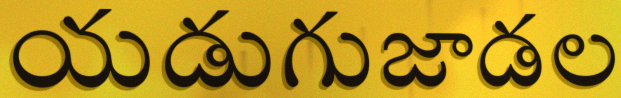
యడుగుజాడల